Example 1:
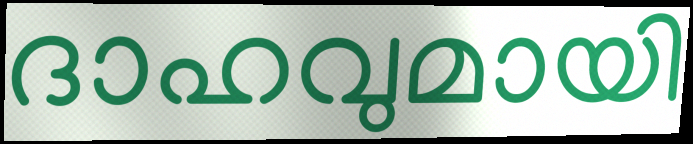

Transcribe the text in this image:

ദാഹവുമായി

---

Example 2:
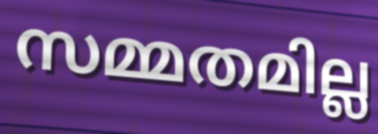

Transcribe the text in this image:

സമ്മതമില്ല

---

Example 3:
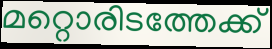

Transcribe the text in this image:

മറ്റൊരിടത്തേക്ക്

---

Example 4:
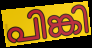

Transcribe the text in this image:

പിങ്കി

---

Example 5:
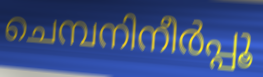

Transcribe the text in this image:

ചെമ്പനിനീർപ്പൂ